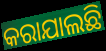
କରାଯାଲଛି